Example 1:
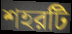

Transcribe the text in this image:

শহরটি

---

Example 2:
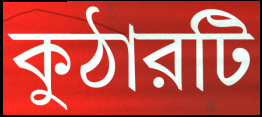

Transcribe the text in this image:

কুঠারটি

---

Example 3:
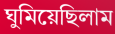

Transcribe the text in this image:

ঘুমিয়েছিলাম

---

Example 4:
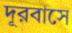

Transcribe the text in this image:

দূরবাসে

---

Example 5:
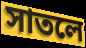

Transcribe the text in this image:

সাতলে